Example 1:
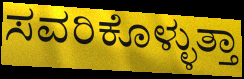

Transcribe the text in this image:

ಸವರಿಕೊಳ್ಳುತ್ತಾ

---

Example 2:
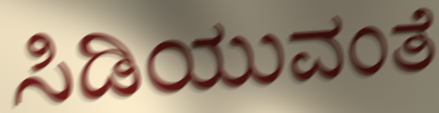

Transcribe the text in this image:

ಸಿಡಿಯುವಂತೆ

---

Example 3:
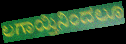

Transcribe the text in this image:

ಲಗಾಯ್ತಿನಿಂದಲೂ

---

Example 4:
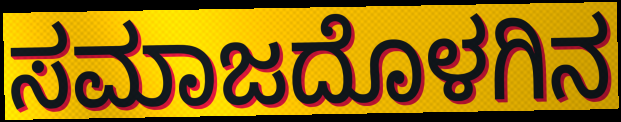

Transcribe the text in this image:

ಸಮಾಜದೊಳಗಿನ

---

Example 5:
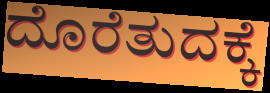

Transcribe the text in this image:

ದೊರೆತುದಕ್ಕೆ